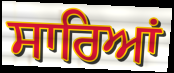
ਸਾਰਿਆਂ